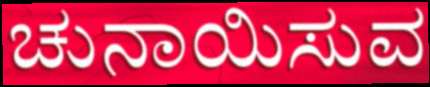
ಚುನಾಯಿಸುವ